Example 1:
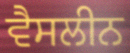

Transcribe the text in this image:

ਵੈਸਲੀਨ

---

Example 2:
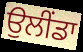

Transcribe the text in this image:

ਉਲੀਂਡਾ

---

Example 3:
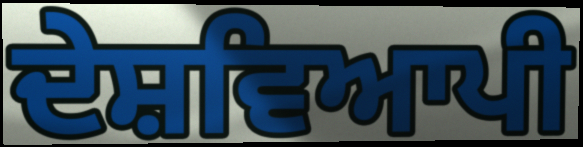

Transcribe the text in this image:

ਦੇਸ਼ਵਿਆਪੀ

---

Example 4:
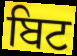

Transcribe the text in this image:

ਬਿਟ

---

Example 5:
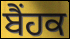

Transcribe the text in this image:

ਬੈਂਹਕ